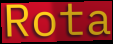
Rota